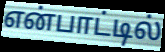
என்பாட்டில்